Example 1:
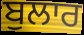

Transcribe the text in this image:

ਬੁਲਾਰ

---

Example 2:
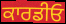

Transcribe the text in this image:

ਕਾਰਡੀਓ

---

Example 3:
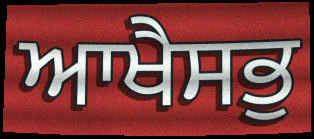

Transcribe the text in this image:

ਆਖੈਸਭੁ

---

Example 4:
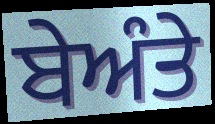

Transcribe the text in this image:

ਬੇਅੰਤੇ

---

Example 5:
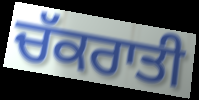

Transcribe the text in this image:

ਚੱਕਰਾਤੀ